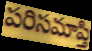
పరిసమాప్తి